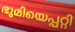
ഭൂമിയെപ്പറ്റി